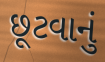
છૂટવાનું